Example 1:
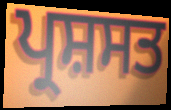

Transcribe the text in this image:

ਪ੍ਰਸ਼ਸਤ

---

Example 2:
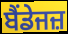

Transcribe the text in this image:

ਬੈਂਡੇਜਜ਼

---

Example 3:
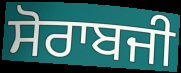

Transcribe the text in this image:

ਸੋਰਾਬਜੀ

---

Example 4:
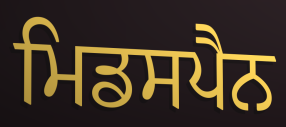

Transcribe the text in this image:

ਮਿਡਸਪੈਨ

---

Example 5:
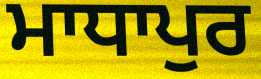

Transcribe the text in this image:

ਮਾਧਾਪੁਰ